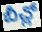
బీచ్లో